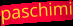
paschimi